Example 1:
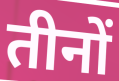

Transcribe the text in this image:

तीनों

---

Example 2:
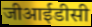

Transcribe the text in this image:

जीआईडीसी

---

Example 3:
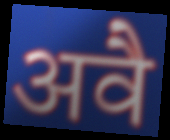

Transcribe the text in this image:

अवै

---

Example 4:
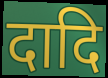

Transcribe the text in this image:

दादि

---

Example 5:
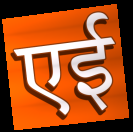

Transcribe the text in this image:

एई